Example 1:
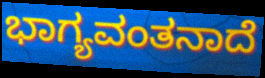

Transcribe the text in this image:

ಭಾಗ್ಯವಂತನಾದೆ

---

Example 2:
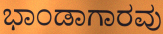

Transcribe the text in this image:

ಭಾಂಡಾಗಾರವು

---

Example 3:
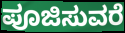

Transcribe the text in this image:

ಪೂಜಿಸುವರೆ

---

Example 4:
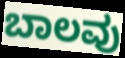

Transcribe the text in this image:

ಬಾಲವು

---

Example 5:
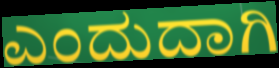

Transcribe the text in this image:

ಎಂದುದಾಗಿ